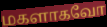
மகளாகவோ